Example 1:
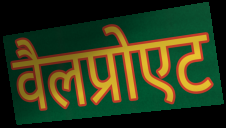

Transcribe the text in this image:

वैलप्रोएट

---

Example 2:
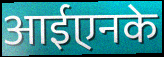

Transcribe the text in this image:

आईएनके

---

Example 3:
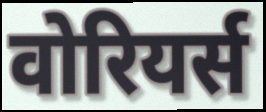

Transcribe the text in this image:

वोरियर्स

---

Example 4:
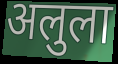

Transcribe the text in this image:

अलुला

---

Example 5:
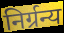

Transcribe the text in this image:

निर्ग्रन्य